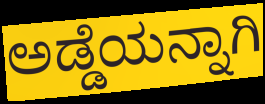
ಅಡ್ಡೆಯನ್ನಾಗಿ